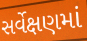
સર્વેક્ષણમાં